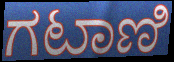
ಗಟಾಣಿ